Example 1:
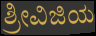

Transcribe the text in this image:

ಶ್ರೀವಿಜಿಯ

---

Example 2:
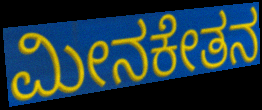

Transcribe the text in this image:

ಮೀನಕೇತನ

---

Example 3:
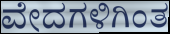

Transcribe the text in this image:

ವೇದಗಳಿಗಿಂತ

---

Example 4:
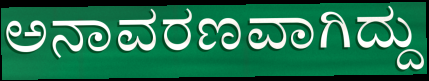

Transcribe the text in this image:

ಅನಾವರಣವಾಗಿದ್ದು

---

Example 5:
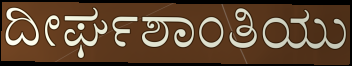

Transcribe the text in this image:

ದೀರ್ಘಶಾಂತಿಯು